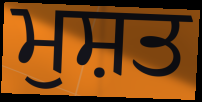
ਮੁਸ਼ਤ